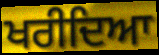
ਖਰੀਦਿਆ